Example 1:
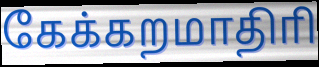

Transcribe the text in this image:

கேக்கறமாதிரி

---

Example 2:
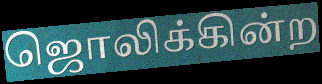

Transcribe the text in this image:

ஜொலிக்கின்ற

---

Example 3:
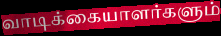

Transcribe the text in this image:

வாடிக்கையாளர்களும்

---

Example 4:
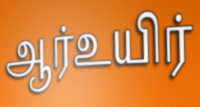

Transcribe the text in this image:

ஆர்உயிர்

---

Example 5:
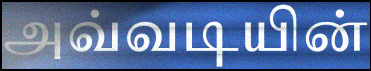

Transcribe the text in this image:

அவ்வடியின்